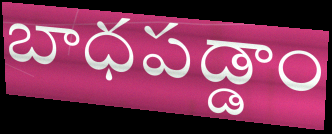
బాధపడ్డాం